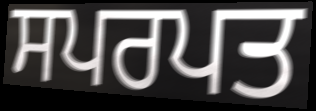
ਸਪਰਪਤ